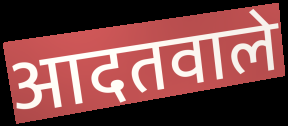
आदतवाले